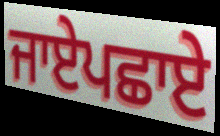
ਜਾਏਪਛਾਏ